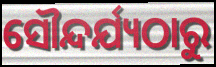
ସୌନ୍ଦର୍ଯ୍ୟଠାରୁ